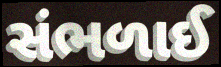
સંભળાઈ